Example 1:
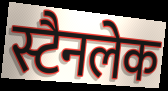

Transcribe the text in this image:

स्टैनलेक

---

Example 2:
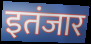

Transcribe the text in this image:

इतंजार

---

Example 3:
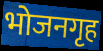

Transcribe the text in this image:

भोजनगृह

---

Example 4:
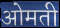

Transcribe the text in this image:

ओमती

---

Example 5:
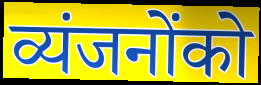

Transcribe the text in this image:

व्यंजनोंको